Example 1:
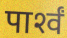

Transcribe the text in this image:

पार्श्वं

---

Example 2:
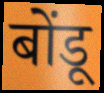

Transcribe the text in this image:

बोंडू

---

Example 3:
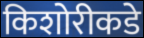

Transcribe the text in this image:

किशोरीकडे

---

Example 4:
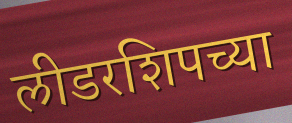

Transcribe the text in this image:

लीडरशिपच्या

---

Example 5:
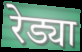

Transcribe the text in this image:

रेड्या